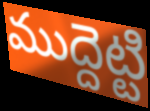
ముద్దెట్టి